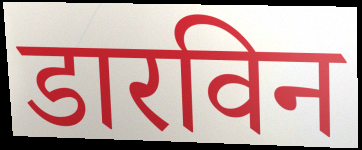
डारविन